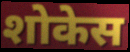
शोकेस